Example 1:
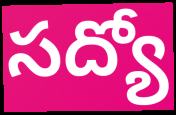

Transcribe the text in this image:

సద్యో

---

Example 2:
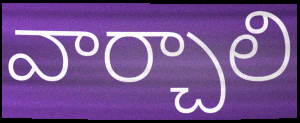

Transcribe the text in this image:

వార్చాలి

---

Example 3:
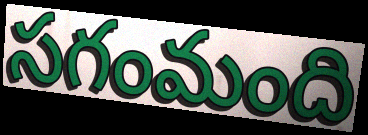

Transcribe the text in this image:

సగంమంది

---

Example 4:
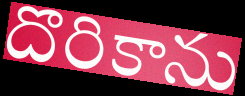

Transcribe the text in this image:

దొరికాను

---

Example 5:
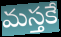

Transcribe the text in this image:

మస్తకే